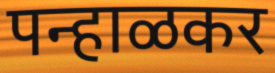
पन्हाळकर